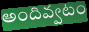
అందివ్వటం